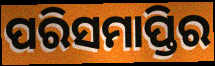
ପରିସମାପ୍ତିର